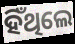
ହିଁଥିଲେ